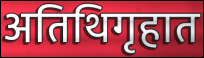
अतिथिगृहात